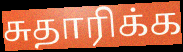
சுதாரிக்க